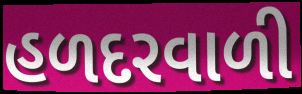
હળદરવાળી